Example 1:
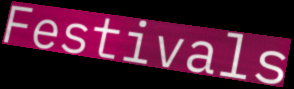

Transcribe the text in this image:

Festivals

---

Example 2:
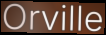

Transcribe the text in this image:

Orville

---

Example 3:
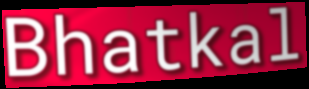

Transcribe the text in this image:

Bhatkal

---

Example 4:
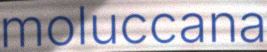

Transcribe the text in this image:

moluccana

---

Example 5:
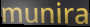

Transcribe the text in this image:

munira